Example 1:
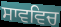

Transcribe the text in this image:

ਸਾਵਵਿਚ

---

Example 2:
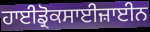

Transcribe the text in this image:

ਹਾਈਡ੍ਰੋਕਸਾਈਜ਼ਾਈਨ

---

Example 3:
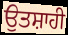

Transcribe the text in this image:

ਉਤਸ਼ਾਹੀ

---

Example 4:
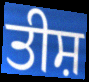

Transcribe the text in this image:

ਤੀਸ਼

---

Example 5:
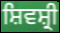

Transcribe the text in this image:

ਸ਼ਿਵਸ਼੍ਰੀ